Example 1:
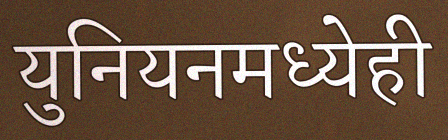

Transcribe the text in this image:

युनियनमध्येही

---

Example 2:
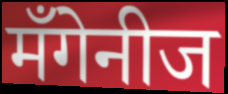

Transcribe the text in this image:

मँगेनीज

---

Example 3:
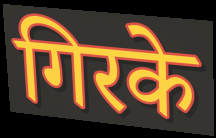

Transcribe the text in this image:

गिरके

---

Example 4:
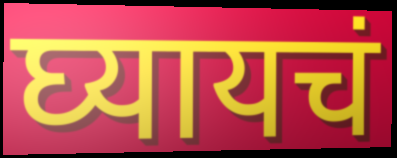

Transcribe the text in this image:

घ्यायचं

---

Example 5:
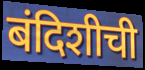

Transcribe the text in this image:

बंदिशीची